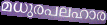
മധുരപലഹാര